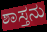
ಶಾಸ್ತನು